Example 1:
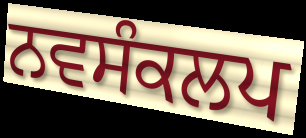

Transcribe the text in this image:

ਨਵਸੰਕਲਪ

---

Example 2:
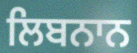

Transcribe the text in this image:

ਲਿਬਨਾਨ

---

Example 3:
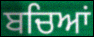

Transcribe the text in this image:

ਬਚਿਆਂ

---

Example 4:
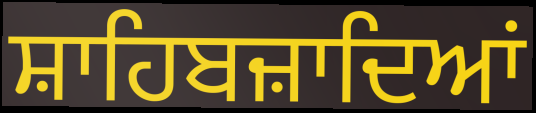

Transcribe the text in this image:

ਸ਼ਾਹਿਬਜ਼ਾਦਿਆਂ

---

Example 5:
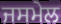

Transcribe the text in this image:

ਜਸਮੇਲ